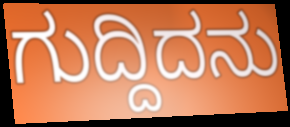
ಗುದ್ದಿದನು